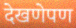
देखणेपण